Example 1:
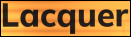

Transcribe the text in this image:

Lacquer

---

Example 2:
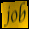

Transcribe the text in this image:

job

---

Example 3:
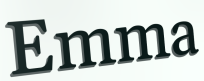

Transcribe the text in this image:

Emma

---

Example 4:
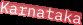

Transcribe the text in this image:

Karnataka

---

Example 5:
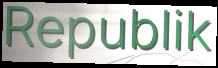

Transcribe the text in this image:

Republik